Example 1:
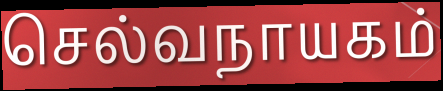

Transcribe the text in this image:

செல்வநாயகம்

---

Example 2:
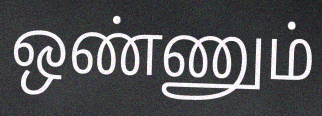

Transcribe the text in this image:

ஒண்ணும்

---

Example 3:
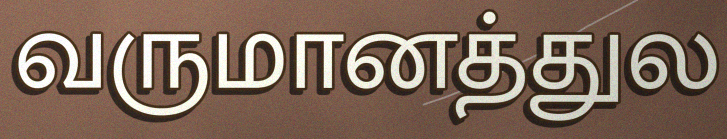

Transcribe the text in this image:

வருமானத்துல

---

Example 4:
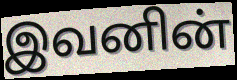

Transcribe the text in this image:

இவனின்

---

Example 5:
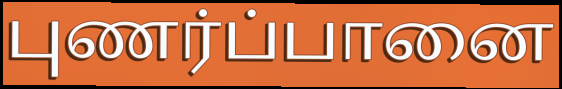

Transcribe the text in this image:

புணர்ப்பானை